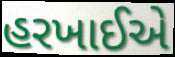
હરખાઈએ